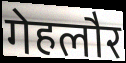
गेहलौर